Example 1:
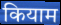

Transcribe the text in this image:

कियाम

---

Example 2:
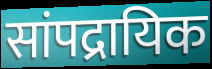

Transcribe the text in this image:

सांपद्रायिक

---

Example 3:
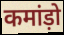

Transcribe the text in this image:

कमांड़ो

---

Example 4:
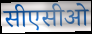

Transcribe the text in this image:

सीएसीओ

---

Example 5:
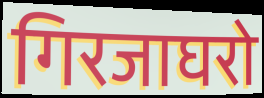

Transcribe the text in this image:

गिरजाघरो